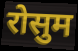
रोसुम